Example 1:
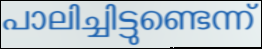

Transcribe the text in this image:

പാലിച്ചിട്ടുണ്ടെന്ന്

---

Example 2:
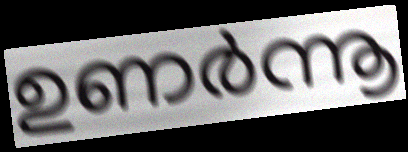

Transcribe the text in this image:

ഉണർന്നൂ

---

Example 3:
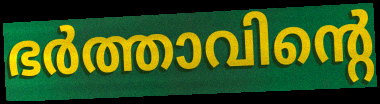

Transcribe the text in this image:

ഭർത്താവിന്റെ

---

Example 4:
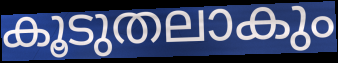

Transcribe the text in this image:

കൂടുതലാകും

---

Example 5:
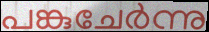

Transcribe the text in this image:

പങ്കുചേർന്നു